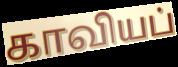
காவியப்